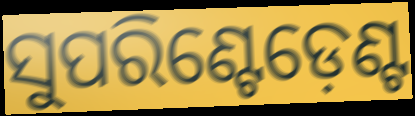
ସୁପରିଣ୍ଟେଡ଼େଣ୍ଟ